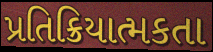
પ્રતિક્રિયાત્મકતા